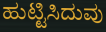
ಹುಟ್ಟಿಸಿದುವು